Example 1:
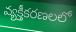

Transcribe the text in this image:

వ్యక్తీకరణలలో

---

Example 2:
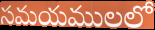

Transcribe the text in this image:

సమయములలో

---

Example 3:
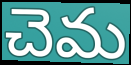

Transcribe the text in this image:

చెమ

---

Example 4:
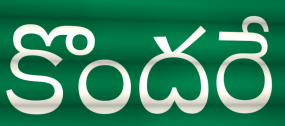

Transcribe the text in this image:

కొందరే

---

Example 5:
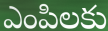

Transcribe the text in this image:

ఎంపిలకు